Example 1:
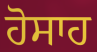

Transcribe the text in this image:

ਹੋਸਾਹ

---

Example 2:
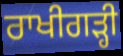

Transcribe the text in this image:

ਰਾਖੀਗੜ੍ਹੀ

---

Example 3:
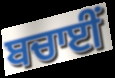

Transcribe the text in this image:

ਬਚਾਈਂ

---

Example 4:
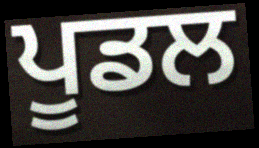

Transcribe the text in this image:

ਪੂਡਲ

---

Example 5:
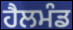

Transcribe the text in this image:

ਹੈਲਮੰਡ